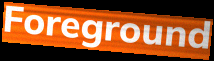
Foreground